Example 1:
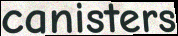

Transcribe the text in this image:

canisters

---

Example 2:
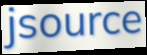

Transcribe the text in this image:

jsource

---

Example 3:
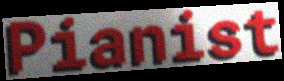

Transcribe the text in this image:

Pianist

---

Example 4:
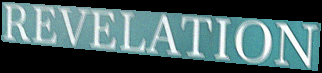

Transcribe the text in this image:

REVELATION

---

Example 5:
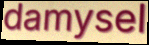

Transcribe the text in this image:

damysel